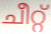
ചീറ്റ്